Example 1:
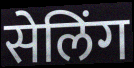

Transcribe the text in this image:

सेलिंग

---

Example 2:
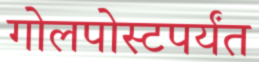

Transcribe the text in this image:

गोलपोस्टपर्यंत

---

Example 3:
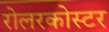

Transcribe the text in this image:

रोलरकोस्टर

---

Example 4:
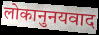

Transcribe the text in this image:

लोकानुनयवाद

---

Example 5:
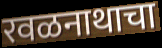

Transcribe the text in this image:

रवळनाथाचा